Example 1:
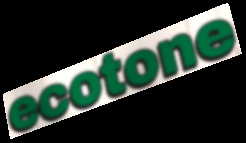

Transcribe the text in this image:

ecotone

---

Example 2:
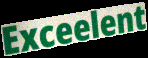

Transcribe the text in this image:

Exceelent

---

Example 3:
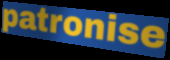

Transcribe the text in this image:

patronise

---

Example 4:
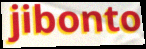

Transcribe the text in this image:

jibonto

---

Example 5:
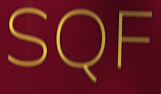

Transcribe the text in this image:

SQF